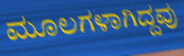
ಮೂಲಗಳಾಗಿದ್ದವು